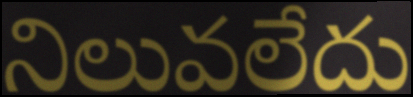
నిలువలేదు